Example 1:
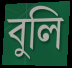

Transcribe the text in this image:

বুলি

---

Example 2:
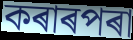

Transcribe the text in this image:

কৰাৰপৰা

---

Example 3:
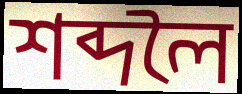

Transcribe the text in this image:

শব্দলৈ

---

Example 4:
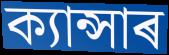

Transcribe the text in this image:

ক্যান্সাৰ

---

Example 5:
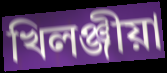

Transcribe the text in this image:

খিলঞ্জীয়া